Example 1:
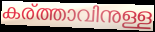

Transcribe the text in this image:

കര്ത്താവിനുള്ള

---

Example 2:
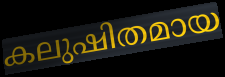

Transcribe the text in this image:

കലുഷിതമായ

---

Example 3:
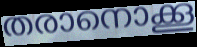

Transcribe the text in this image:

തരാനൊക്കൂ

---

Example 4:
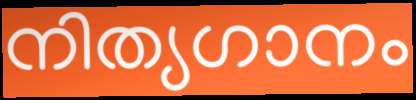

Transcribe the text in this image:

നിത്യഗാനം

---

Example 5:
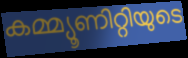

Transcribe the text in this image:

കമ്മ്യൂണിറ്റിയുടെ